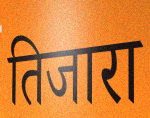
तिजारा